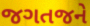
જગતજને